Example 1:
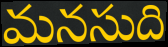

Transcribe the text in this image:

మనసుది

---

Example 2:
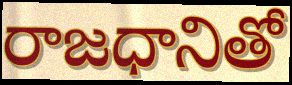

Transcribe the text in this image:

రాజధానితో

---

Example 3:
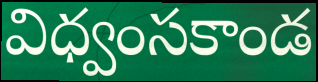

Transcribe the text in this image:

విధ్వంసకాండ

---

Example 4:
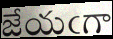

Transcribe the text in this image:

జేయఁగా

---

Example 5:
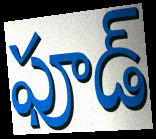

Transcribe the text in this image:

ఫూడ్